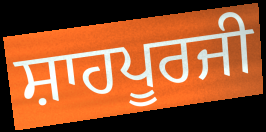
ਸ਼ਾਹਪੂਰਜੀ